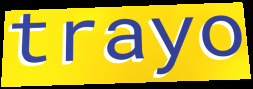
trayo